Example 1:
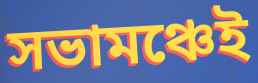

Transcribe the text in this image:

সভামঞ্চেই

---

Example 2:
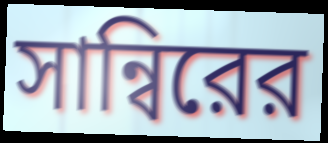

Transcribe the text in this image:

সান্বিরের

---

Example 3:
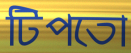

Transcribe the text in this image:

টিপতো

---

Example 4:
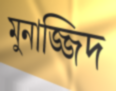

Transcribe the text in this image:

মুনাজ্জিদ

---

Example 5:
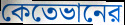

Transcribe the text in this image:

কেতেভানের